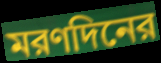
মরণদিনের